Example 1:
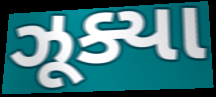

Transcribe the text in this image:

ઝૂક્યા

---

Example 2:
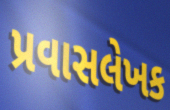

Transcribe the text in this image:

પ્રવાસલેખક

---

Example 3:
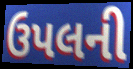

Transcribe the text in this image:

ઉપલની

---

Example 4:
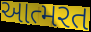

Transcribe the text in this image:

આત્મરત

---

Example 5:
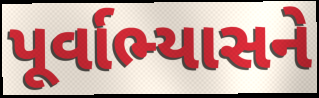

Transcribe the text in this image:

પૂર્વાભ્યાસને